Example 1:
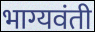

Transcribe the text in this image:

भाग्यवंती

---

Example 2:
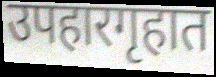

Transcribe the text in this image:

उपहारगृहात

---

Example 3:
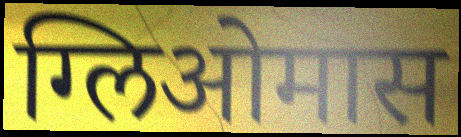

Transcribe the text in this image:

ग्लिओमास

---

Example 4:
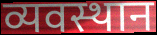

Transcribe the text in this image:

व्यवस्थान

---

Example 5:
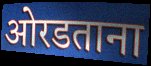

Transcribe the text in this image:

ओरडताना